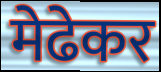
मेढेकर